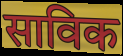
साविक